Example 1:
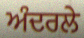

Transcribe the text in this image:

ਅੰਦਰਲੇ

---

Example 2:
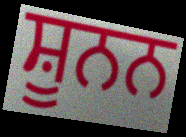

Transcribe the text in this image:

ਸ਼ੂਨਨ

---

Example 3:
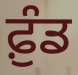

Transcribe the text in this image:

ਫ਼ੁੰਡ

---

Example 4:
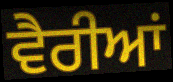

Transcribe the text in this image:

ਵੈਰੀਆਂ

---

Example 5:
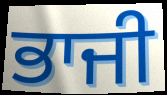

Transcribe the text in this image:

ਭਾਜੀ